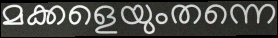
മക്കളെയുംതന്നെ